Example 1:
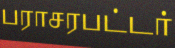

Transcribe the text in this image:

பராசரபட்டர்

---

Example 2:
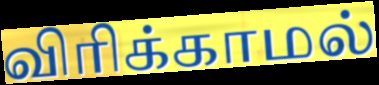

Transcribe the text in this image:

விரிக்காமல்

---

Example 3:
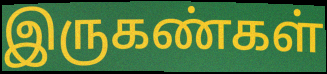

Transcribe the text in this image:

இருகண்கள்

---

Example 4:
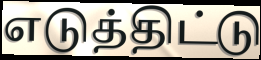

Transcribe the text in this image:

எடுத்திட்டு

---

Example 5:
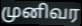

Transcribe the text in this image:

முனிவர